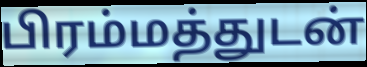
பிரம்மத்துடன்